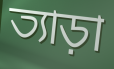
ত্যাড়া